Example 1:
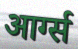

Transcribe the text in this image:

आर्ग्स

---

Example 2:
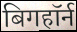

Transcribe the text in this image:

बिगहॉर्न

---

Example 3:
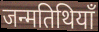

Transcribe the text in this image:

जन्मतिथियाँ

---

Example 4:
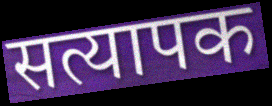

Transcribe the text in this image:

सत्यापक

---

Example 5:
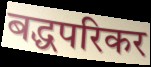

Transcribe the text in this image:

बद्धपरिकर